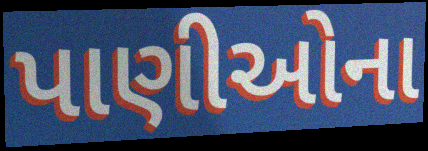
પાણીઓના